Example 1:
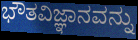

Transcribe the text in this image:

ಭೌತವಿಜ್ಞಾನವನ್ನು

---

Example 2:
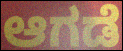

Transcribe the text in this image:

ಆಗಡೆ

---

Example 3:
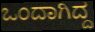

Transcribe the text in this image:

ಒಂದಾಗಿದ್ದ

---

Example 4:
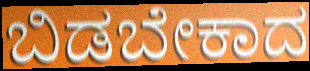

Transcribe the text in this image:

ಬಿಡಬೇಕಾದ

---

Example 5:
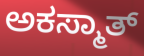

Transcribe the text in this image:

ಅಕಸ್ಮಾತ್